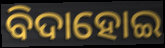
ବିଦାହୋଇ